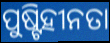
ପୁଷ୍ଟିହୀନତା